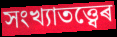
সংখ্যাতত্ত্বেৰ